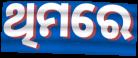
ଥିମରେ